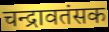
चन्द्रावतंसक